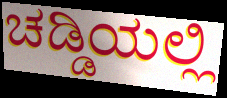
ಚಡ್ಡಿಯಲ್ಲಿ